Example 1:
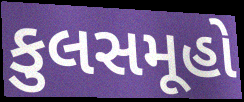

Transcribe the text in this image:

કુલસમૂહો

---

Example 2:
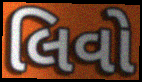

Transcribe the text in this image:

લિવો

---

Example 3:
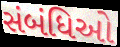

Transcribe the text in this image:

સંબંધિઓ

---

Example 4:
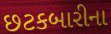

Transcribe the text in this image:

છટકબારીના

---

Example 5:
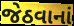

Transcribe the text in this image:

જેઠવાનાં